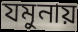
যমুনায়